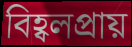
বিহ্বলপ্রায়